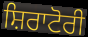
ਸ਼ਿਰਾਟੋਰੀ